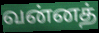
வன்னத்